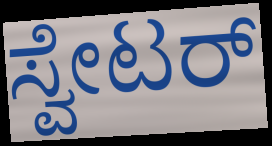
ಸ್ವೇಟರ್